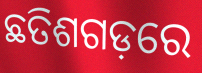
ଛତିଶଗଡ଼ରେ